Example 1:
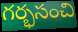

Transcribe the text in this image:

గర్భసంచి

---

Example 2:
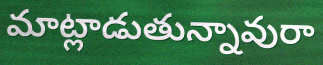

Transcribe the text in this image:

మాట్లాడుతున్నావురా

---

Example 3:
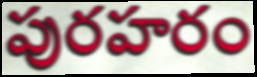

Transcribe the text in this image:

పురహరం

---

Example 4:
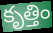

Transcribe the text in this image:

కృత్తిం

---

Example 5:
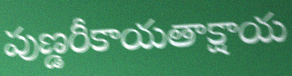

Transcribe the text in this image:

పుణ్డరీకాయతాక్షాయ